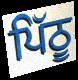
ਪਿੱਠੂ